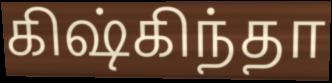
கிஷ்கிந்தா